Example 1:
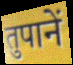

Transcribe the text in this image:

तुपानें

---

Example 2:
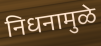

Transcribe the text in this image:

निधनामुळे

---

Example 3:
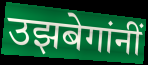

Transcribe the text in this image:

उझबेगांनीं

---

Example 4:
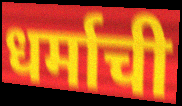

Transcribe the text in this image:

धर्माची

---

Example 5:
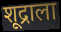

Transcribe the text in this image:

शूद्राला